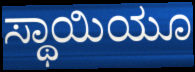
ಸ್ಥಾಯಿಯೂ